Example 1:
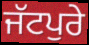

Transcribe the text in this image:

ਜੱਟਪੁਰੇ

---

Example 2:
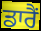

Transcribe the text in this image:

ਡਾਰੈਂ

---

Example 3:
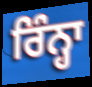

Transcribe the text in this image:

ਰਿੰਨ੍ਹਾ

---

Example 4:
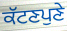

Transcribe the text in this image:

ਕੱਟਣਪੁਣੇ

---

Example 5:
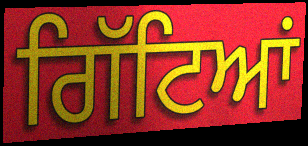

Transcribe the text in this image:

ਗਿੱਟਿਆਂ